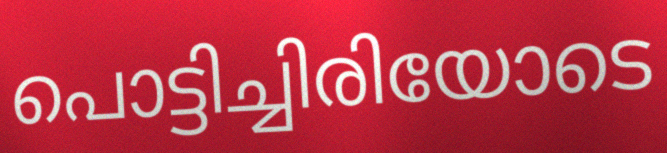
പൊട്ടിച്ചിരിയോടെ